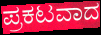
ಪ್ರಕಟವಾದ